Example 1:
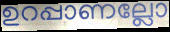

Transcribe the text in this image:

ഉറപ്പാണല്ലോ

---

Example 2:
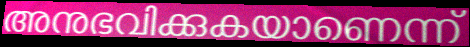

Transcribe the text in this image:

അനുഭവിക്കുകയാണെന്ന്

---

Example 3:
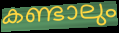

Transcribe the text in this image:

കണ്ടാലും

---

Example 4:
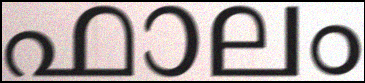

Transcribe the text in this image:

ഫാലം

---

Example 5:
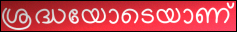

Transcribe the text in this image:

ശ്രദ്ധയോടെയാണ്